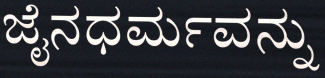
ಜೈನಧರ್ಮವನ್ನು